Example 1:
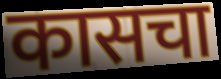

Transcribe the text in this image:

कासचा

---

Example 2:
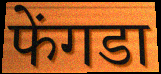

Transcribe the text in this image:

फेंगडा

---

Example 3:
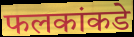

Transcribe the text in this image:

फलकांकडे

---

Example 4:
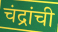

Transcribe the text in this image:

चंद्रांची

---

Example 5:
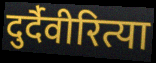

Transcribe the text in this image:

दुर्दैवीरित्या